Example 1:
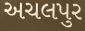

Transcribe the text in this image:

અચલપુર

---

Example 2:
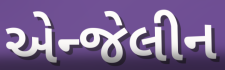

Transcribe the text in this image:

એન્જેલીન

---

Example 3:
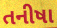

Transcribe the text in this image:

તનીષા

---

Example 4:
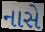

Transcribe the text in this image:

નાસે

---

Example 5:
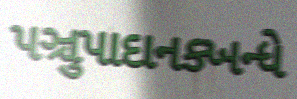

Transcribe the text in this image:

પઞ્ચુપાદાનક્ખન્ધે